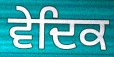
ਵੇਦਿਕ